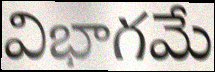
విభాగమే